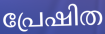
പ്രേഷിത